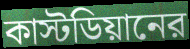
কাস্টডিয়ানের